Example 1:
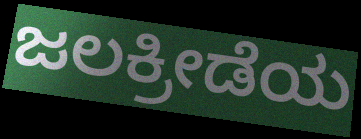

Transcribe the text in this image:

ಜಲಕ್ರೀಡೆಯ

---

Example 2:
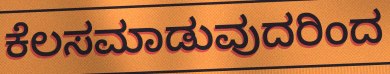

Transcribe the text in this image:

ಕೆಲಸಮಾಡುವುದರಿಂದ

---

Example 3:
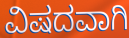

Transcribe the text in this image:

ವಿಷದವಾಗಿ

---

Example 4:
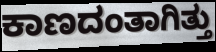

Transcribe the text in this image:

ಕಾಣದಂತಾಗಿತ್ತು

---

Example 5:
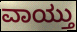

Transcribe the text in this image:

ವಾಯ್ತು